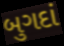
બુગદાં